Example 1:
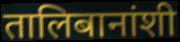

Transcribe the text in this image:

तालिबानांशी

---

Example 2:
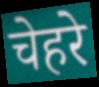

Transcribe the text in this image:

चेहरे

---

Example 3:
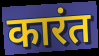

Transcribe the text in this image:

कारंत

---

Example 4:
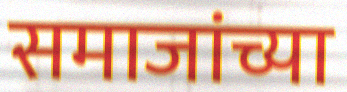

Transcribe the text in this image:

समाजांच्या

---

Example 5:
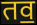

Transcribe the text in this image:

तव॒